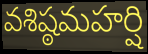
వశిష్ఠమహర్షి